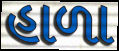
હાળા